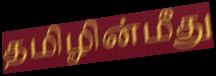
தமிழின்மீது